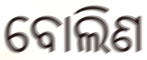
ବୋଲିଣ